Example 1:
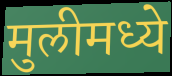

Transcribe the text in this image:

मुलीमध्ये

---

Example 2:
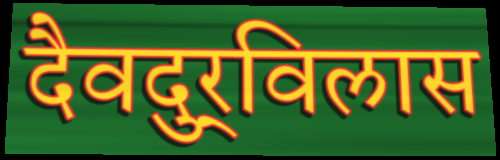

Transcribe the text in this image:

दैवदुर्विलास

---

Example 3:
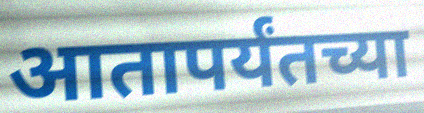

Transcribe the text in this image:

आतापर्यंतच्या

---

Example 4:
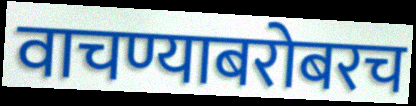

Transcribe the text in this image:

वाचण्याबरोबरच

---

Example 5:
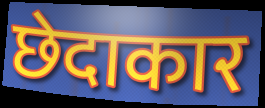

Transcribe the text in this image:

छेदाकार